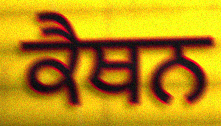
ਕੈਥਨ